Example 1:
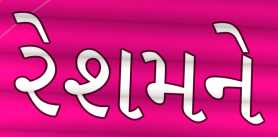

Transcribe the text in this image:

રેશમને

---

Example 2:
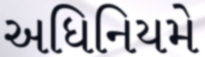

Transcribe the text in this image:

અધિનિયમે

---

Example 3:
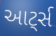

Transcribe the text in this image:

આટ્‌ર્સ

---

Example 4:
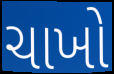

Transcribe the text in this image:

ચાખો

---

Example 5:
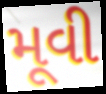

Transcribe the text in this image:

મૂવી